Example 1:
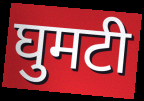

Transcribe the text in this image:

घुमटी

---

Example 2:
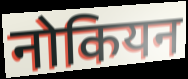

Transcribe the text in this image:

नोकियन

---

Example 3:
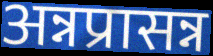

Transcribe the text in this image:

अन्नप्रासन्न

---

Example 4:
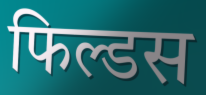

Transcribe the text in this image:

फिल्डस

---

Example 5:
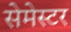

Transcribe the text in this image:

सेमेस्टर